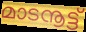
മാടനൂട്ട്